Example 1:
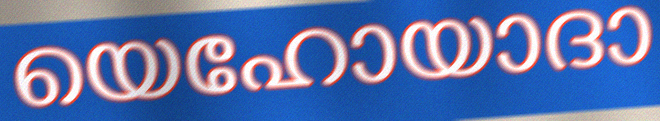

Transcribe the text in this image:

യെഹോയാദാ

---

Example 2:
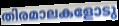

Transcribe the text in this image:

തിരമാലകളോടു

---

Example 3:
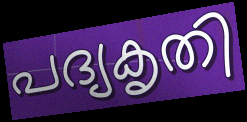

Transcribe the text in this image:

പദ്യകൃതി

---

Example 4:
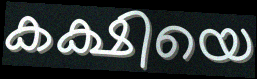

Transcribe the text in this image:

കക്ഷിയെ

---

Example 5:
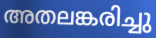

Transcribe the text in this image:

അതലങ്കരിച്ചു